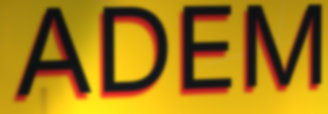
ADEM